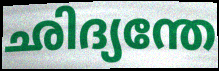
ഛിദ്യന്തേ